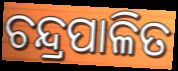
ଚନ୍ଦ୍ରପାଳିତ